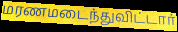
மரணமடைந்துவிட்டார்